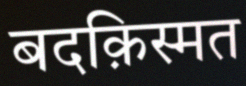
बदक़िस्मत